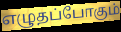
எழுதப்போகும்